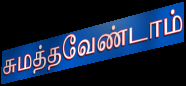
சுமத்தவேண்டாம்